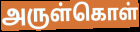
அருள்கொள்